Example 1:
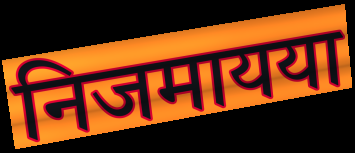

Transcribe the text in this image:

निजमायया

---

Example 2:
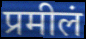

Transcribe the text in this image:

प्रमीलं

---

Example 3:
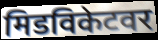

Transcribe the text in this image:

मिडविकेटवर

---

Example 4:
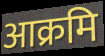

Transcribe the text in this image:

आक्रमि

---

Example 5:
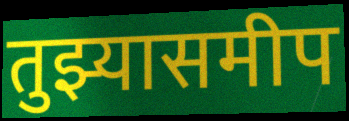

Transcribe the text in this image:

तुझ्यासमीप